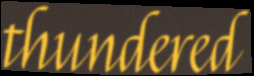
thundered